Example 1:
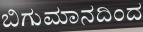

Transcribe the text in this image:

ಬಿಗುಮಾನದಿಂದ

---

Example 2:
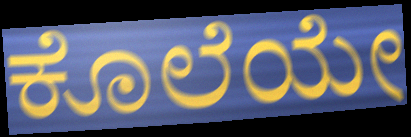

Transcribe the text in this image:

ಕೊಲೆಯೇ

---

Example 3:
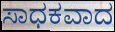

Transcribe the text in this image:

ಸಾಧಕವಾದ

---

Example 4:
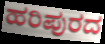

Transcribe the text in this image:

ಹರಿಪುರದ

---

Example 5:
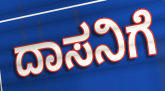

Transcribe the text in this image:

ದಾಸನಿಗೆ